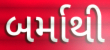
બર્માથી